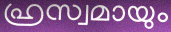
ഹ്രസ്വമായും